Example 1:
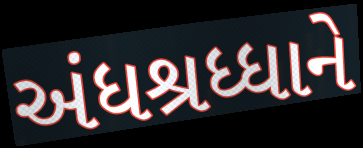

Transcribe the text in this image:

અંધશ્રધ્ધાને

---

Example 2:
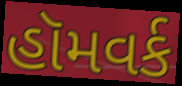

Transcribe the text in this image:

હૉમવર્ક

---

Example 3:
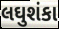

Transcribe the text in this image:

લઘુશંકા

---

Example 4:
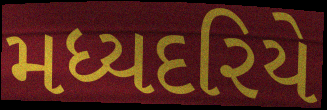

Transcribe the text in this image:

મધ્યદરિયે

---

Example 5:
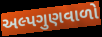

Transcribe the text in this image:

અલ્પગુણવાળો